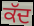
ਕੱਦ